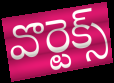
వొర్టెక్స్